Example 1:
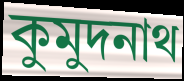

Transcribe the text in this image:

কুমুদনাথ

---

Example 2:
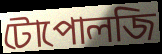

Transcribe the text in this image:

টোপোলজি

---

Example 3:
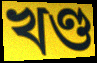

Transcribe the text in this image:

খণ্ড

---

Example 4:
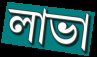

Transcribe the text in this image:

লাভা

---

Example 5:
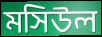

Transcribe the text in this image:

মসিউল